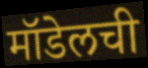
मॉडेलची